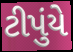
ટીપુંયે